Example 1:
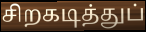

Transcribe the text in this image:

சிறகடித்துப்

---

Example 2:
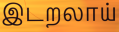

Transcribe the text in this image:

இடறலாய்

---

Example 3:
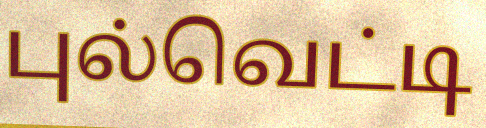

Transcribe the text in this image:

புல்வெட்டி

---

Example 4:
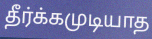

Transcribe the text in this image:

தீர்க்கமுடியாத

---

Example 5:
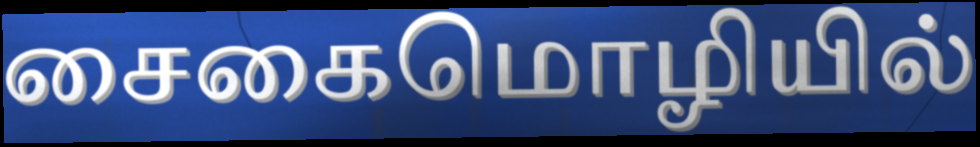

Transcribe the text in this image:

சைகைமொழியில்